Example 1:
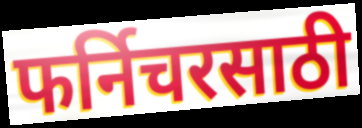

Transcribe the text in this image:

फर्निचरसाठी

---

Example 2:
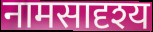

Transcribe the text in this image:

नामसादृश्य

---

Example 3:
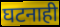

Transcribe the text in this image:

घटनाही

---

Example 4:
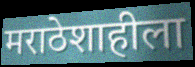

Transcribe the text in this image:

मराठेशाहीला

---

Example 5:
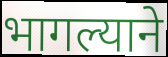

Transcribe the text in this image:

भागल्याने